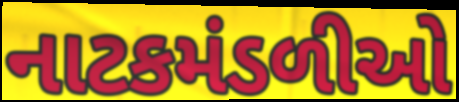
નાટકમંડળીઓ